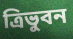
ত্রিভুবন